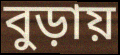
বুড়ায়